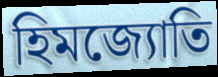
হিমজ্যোতি